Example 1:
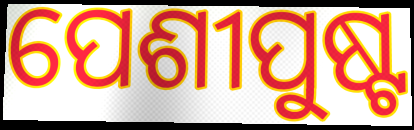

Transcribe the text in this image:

ପେଶୀପୁଷ୍ଟ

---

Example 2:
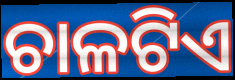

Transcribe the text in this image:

ଚାଳଟିଏ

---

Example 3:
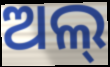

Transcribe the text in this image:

ଅଲ୍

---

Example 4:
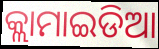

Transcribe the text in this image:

କ୍ଲାମାଇଡିଆ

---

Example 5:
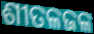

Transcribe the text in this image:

ଶୀତଳଜଳ